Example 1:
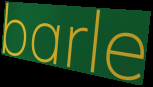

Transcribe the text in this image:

barle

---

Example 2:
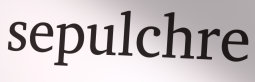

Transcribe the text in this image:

sepulchre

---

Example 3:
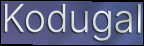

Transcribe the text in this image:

Kodugal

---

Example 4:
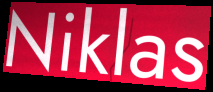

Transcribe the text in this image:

Niklas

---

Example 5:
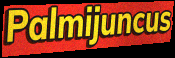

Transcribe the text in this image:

Palmijuncus